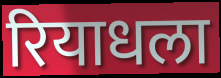
रियाधला